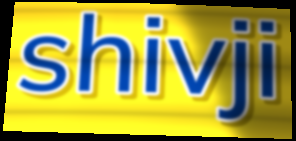
shivji